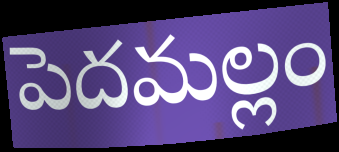
పెదమల్లం